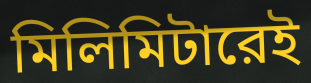
মিলিমিটারেই